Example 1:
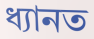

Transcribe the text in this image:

ধ্যানত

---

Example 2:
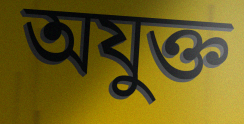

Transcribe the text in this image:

অযুক্ত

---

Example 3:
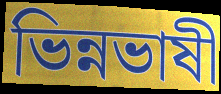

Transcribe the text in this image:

ভিন্নভাষী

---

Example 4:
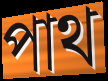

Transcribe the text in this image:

পাথ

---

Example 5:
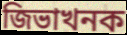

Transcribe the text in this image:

জিভাখনক